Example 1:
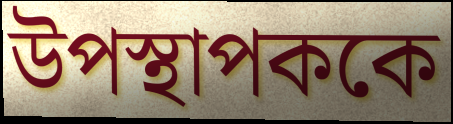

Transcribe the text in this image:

উপস্থাপককে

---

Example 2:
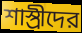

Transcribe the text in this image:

শাস্ত্রীদের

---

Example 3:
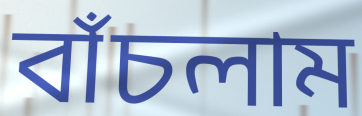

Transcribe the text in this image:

বাঁচলাম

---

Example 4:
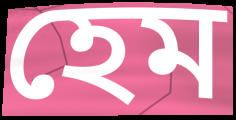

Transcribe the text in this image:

হেম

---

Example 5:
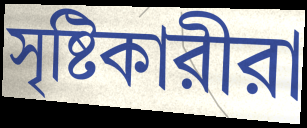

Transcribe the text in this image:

সৃষ্টিকারীরা